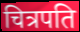
चित्रपति